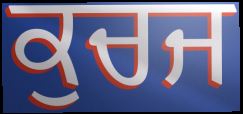
ਕੁਚਜ